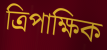
ত্ৰিপাক্ষিক